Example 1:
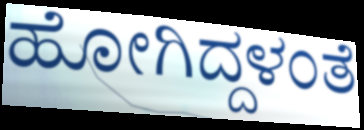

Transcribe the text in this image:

ಹೋಗಿದ್ದಳಂತೆ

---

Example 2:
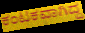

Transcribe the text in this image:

ಕಂಟಕವಾಗಿದ್ದ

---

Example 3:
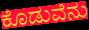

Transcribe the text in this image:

ಕೊಡುವೆನು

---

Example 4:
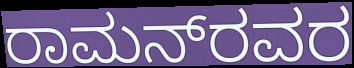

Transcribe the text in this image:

ರಾಮನ್‌ರವರ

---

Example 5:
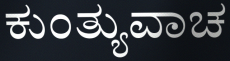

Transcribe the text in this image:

ಕುಂತ್ಯುವಾಚ